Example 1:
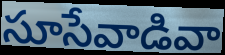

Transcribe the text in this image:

సూసేవాడివా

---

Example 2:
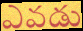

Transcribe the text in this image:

ఎవడు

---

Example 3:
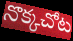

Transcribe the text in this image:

నొక్కచోట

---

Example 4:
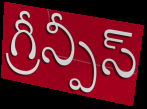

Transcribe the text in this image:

గ్రీన్పీస్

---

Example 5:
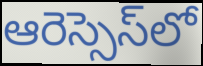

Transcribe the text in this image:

ఆరెస్సెస్‌లో